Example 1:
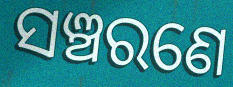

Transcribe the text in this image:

ସଞ୍ଚରଣେ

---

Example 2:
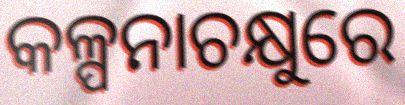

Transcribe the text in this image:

କଳ୍ପନାଚକ୍ଷୁରେ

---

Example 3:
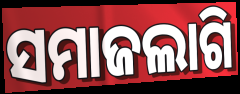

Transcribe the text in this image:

ସମାଜଲାଗି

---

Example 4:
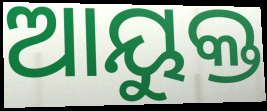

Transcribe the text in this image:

ଆୟୁକ୍ତ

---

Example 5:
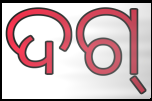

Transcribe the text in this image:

ଦଗ୍